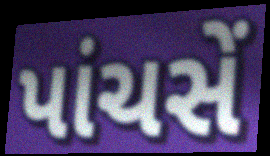
પાંચસેં